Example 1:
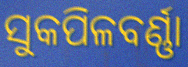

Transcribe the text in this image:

ସୁକପିଳବର୍ଣ୍ଣା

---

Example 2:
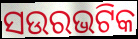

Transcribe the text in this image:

ସଉରଭଟିକ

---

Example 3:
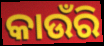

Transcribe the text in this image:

କାଉଁରି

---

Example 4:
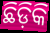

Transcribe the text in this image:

ଛିଡ଼ିକି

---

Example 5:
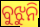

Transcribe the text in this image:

ବୁଝୁନି